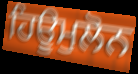
ਹਿਊਮੁਲੋਨ